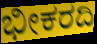
ಭೀಕರದಿ